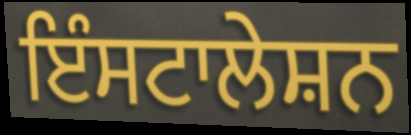
ਇੰਸਟਾਲੇਸ਼ਨ